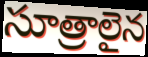
సూత్రాలైన